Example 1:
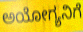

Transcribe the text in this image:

ಅಯೋಗ್ಯನಿಗೆ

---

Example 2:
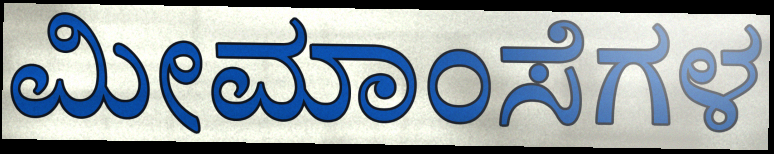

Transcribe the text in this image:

ಮೀಮಾಂಸೆಗಳ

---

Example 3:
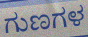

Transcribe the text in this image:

ಗುಣಗಳ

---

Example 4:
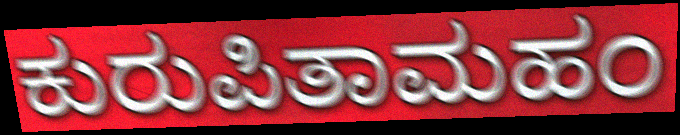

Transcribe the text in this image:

ಕುರುಪಿತಾಮಹಂ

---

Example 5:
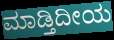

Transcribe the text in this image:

ಮಾಡ್ತಿದೀಯ